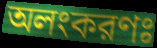
অলংকরণঃ